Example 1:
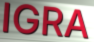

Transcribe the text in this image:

IGRA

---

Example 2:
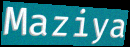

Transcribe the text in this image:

Maziya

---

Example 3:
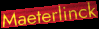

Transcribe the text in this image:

Maeterlinck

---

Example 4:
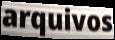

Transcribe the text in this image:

arquivos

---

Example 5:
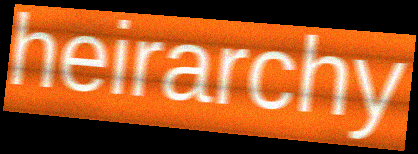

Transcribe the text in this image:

heirarchy